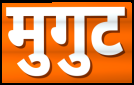
मुगुट